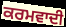
ਕਰਮਵਾਦੀ